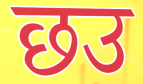
छउ